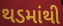
થડમાંથી